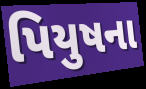
પિયુષના